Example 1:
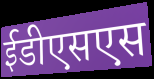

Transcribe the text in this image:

ईडीएसएस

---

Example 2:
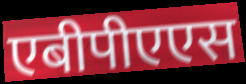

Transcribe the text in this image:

एबीपीएएस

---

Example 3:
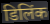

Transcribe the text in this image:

डिलिंक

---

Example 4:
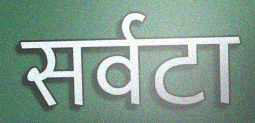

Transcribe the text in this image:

सर्वटा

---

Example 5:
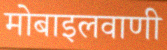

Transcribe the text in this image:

मोबाइलवाणी